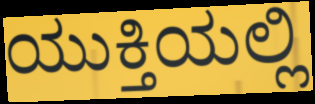
ಯುಕ್ತಿಯಲ್ಲಿ